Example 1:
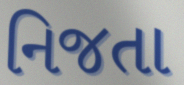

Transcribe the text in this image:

નિજતા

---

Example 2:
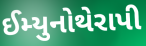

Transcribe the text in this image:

ઈમ્યુનોથેરાપી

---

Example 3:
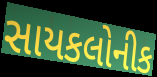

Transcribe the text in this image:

સાયકલોનીક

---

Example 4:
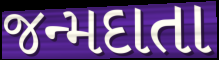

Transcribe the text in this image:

જન્મદાતા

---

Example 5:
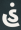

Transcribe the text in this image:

હં